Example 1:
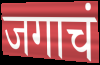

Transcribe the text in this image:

जगाचं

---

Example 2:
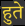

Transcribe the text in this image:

हुते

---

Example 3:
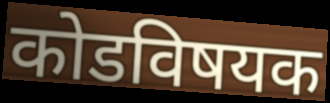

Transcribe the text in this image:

कोडविषयक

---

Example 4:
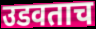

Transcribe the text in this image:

उडवताच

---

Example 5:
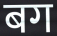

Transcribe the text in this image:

बग